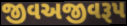
જીવઅજીવરૂપ